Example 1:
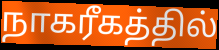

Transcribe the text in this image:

நாகரீகத்தில்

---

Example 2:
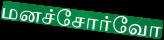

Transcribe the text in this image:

மனச்சோர்வோ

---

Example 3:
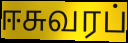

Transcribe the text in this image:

ஈசுவரப்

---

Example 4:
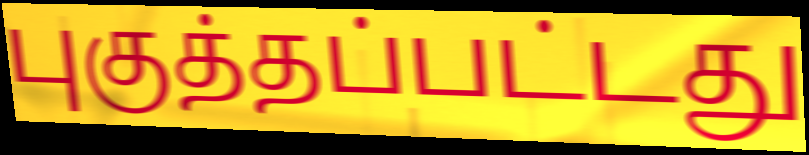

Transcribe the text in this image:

புகுத்தப்பட்டது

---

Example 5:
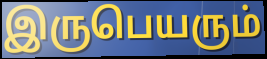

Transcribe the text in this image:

இருபெயரும்